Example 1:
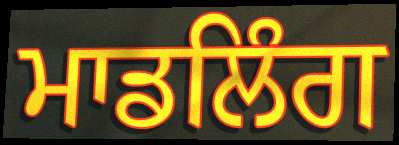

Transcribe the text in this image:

ਮਾਡਲਿੰਗ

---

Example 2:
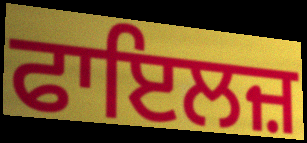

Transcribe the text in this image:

ਫਾਇਲਜ਼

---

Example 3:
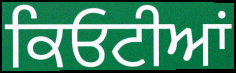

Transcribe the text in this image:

ਕਿਓਟੀਆਂ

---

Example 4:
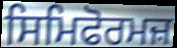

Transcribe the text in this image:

ਸਿਮਿਫੋਰਮਜ਼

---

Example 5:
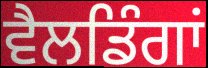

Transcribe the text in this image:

ਵੈਲਡਿੰਗਾਂ